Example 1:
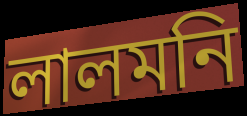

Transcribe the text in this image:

লালমনি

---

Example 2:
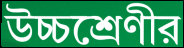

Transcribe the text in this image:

উচ্চশ্রেণীর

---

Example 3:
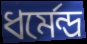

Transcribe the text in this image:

ধর্মেন্দ্র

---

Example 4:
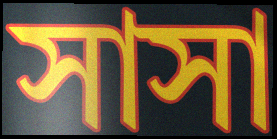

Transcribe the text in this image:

সাসা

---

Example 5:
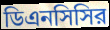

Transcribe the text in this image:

ডিএনসিসির